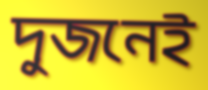
দুজনেই